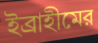
ইব্রাহীমের